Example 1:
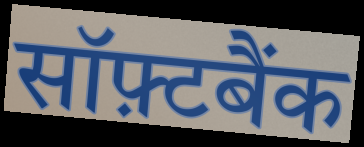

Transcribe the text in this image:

सॉफ़्टबैंक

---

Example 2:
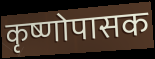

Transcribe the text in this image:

कृष्णोपासक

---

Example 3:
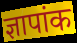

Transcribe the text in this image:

ज्ञापांक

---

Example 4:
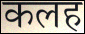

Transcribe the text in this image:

कलह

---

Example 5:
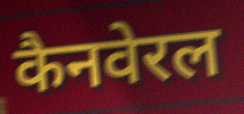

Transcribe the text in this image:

कैनवेरल